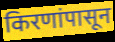
किरणांपासून